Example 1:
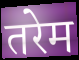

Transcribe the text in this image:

तरेम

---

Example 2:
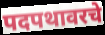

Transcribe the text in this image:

पदपथावरचे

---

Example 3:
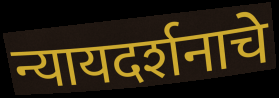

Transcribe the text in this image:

न्यायदर्शनाचे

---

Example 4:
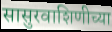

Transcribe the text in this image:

सासुरवाशिणीच्या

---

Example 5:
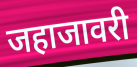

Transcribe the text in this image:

जहाजावरी